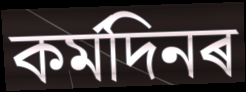
কৰ্মদিনৰ